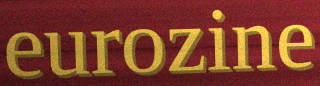
eurozine